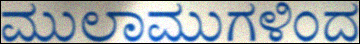
ಮುಲಾಮುಗಳಿಂದ